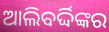
ଆଲିବର୍ଦ୍ଦିଙ୍କର